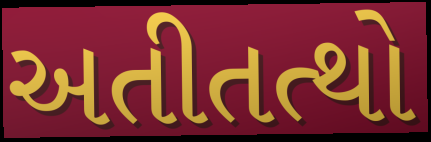
અતીતત્થો